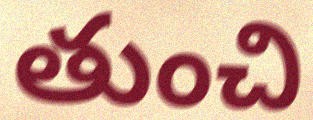
తుంచి